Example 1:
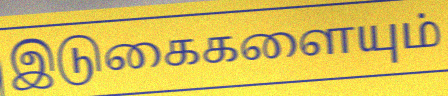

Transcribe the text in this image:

இடுகைகளையும்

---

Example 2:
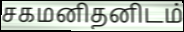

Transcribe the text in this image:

சகமனிதனிடம்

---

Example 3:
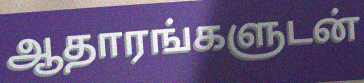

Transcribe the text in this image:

ஆதாரங்களுடன்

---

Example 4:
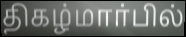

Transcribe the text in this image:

திகழ்மார்பில்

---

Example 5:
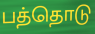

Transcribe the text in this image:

பத்தொடு